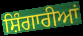
ਸ਼ਿੰਗਾਰੀਆਂ